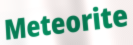
Meteorite